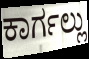
ಕಾರ್ಗಲ್ಲು